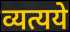
व्यत्यये